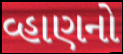
વ્હાણનો